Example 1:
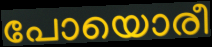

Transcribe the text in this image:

പോയൊരീ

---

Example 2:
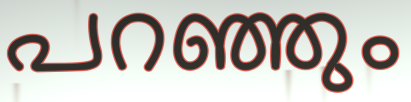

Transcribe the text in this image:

പറഞ്ഞും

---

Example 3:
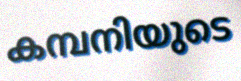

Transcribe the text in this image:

കമ്പനിയുടെ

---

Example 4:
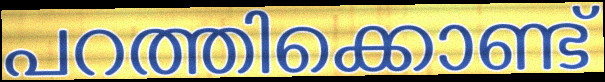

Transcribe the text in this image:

പറത്തിക്കൊണ്ട്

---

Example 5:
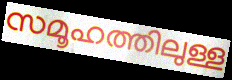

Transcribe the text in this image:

സമൂഹത്തിലുള്ള